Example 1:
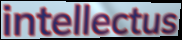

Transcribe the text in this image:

intellectus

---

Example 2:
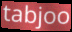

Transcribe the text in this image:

tabjoo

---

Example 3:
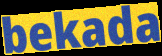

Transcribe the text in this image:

bekada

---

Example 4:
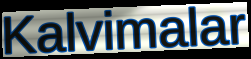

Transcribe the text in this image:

Kalvimalar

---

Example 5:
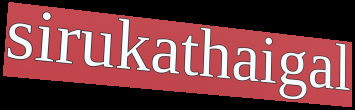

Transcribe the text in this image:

sirukathaigal